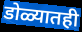
डोळ्यातही